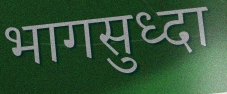
भागसुध्दा